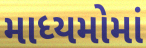
માધ્યમોમાં